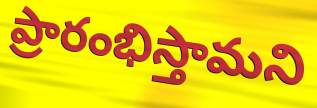
ప్రారంభిస్తామని